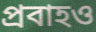
প্রবাহও